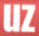
uz